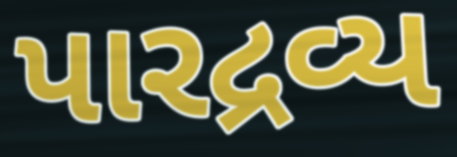
પારદ્રવ્ય